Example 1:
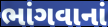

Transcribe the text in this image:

ભાંગવાનાં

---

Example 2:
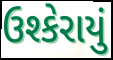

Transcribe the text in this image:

ઉશ્કેરાયું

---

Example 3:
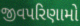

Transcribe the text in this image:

જીવપરિણામો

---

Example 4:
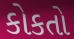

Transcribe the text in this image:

કોકતો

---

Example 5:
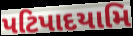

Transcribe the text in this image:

પટિપાદયામિ